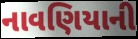
નાવણિયાની